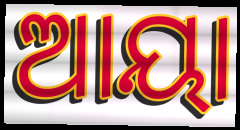
ଆୟା